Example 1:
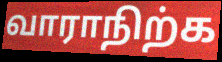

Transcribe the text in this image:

வாராநிற்க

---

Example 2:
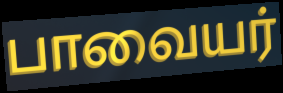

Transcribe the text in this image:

பாவையர்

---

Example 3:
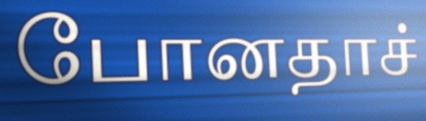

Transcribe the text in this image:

போனதாச்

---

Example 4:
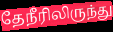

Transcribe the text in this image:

தேநீரிலிருந்து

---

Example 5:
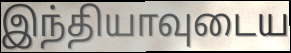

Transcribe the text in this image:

இந்தியாவுடைய